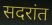
सदरांत